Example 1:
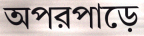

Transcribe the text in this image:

অপরপাড়ে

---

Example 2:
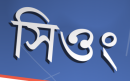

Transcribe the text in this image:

সিওং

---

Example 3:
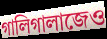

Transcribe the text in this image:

গালিগালাজেও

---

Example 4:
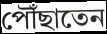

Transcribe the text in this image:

পৌঁছাতেন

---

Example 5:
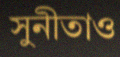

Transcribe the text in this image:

সুনীতাও